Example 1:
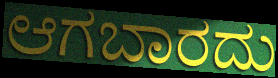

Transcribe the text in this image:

ಆಗಬಾರದು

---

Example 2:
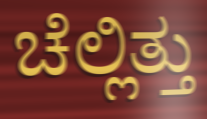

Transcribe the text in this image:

ಚೆಲ್ಲಿತ್ತು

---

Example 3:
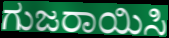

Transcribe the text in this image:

ಗುಜರಾಯಿಸಿ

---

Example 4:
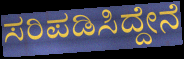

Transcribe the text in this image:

ಸರಿಪಡಿಸಿದ್ದೇನೆ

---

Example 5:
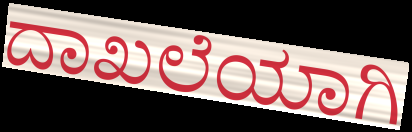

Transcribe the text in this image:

ದಾಖಲೆಯಾಗಿ